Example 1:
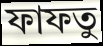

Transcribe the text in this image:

ফাফতু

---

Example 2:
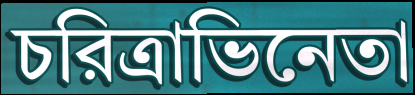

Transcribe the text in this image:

চরিত্রাভিনেতা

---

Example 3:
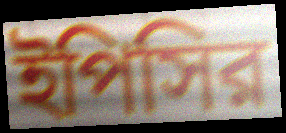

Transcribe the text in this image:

ইপিসির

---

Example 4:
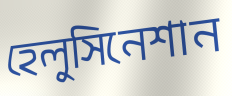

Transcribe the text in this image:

হেলুসিনেশান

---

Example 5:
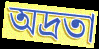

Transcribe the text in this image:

অদ্রতা